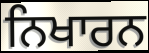
ਨਿਖਾਰਨ